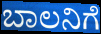
ಬಾಲನಿಗೆ